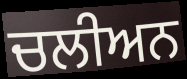
ਚਲੀਅਨ